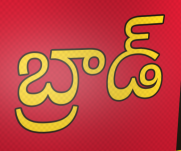
బ్రాడ్